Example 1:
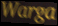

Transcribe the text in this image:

Warga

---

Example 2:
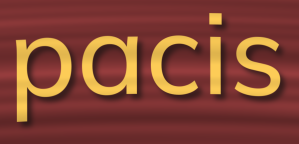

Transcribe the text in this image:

pacis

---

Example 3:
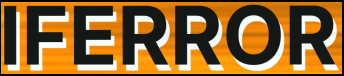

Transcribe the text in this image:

IFERROR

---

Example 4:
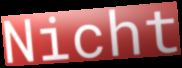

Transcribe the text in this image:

Nicht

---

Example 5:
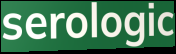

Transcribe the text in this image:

serologic